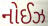
નોઈઝ